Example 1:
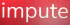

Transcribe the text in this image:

impute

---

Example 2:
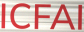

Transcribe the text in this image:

ICFAI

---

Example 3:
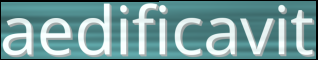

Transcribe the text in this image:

aedificavit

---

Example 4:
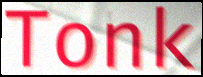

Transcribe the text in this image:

Tonk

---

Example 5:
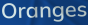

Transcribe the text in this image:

Oranges